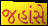
જહાંસે